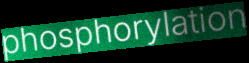
phosphorylation